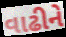
વાઢીને